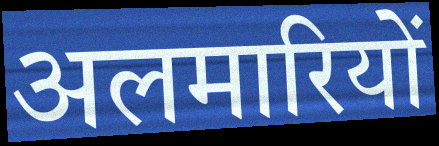
अलमारियों